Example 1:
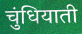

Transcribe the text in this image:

चुंधियाती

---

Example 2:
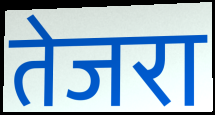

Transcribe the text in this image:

तेजरा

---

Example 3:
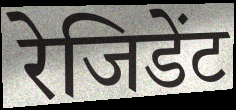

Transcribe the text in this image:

रेजिडेंट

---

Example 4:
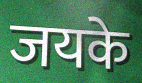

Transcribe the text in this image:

जयके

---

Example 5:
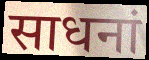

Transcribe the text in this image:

साधनां